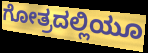
ಗೋತ್ರದಲ್ಲಿಯೂ